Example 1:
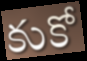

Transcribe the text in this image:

కుకో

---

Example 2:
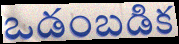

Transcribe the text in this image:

ఒడంబడిక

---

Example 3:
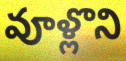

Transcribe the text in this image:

వూళ్లొని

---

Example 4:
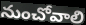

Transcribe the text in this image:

నుంచోవాలి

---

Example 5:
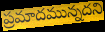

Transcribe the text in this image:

ప్రమాదమున్నదని